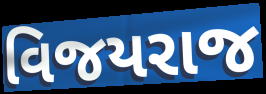
વિજયરાજ